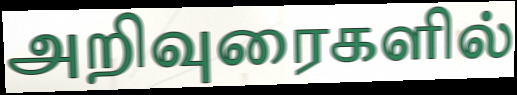
அறிவுரைகளில்